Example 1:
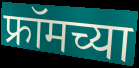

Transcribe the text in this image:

फ्रॉमच्या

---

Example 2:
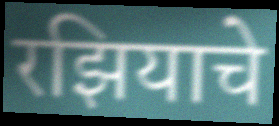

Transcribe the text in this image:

रझियाचे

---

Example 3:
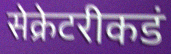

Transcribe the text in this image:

सेक्रेटरीकडं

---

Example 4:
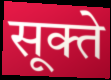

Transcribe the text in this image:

सूक्ते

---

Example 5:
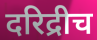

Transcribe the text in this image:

दरिद्रीच